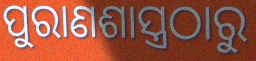
ପୁରାଣଶାସ୍ତ୍ରଠାରୁ